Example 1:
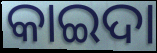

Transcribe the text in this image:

କାଇଦା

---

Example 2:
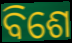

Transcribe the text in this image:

ବିଶେ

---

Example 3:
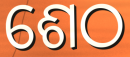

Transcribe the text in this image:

ଶେଠ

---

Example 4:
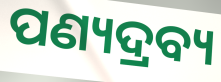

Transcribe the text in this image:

ପଣ୍ୟଦ୍ରବ୍ୟ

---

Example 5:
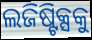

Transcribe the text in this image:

ଲଜିଷ୍ଟିକ୍ସକୁ